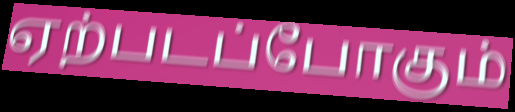
ஏற்படப்போகும்